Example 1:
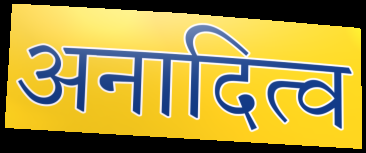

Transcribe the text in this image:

अनादित्व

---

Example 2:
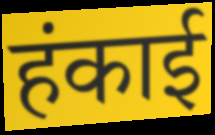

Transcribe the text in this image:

हंकाई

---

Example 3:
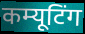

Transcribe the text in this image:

कम्यूटिंग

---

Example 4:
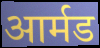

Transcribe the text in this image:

आर्मड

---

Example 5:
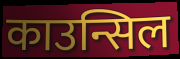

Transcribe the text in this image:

काउन्सिल